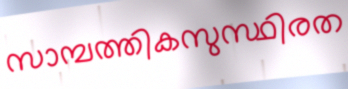
സാമ്പത്തികസുസ്ഥിരത